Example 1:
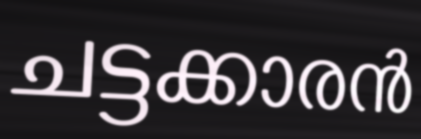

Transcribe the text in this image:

ചട്ടക്കാരൻ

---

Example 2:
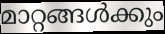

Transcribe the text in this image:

മാറ്റങ്ങൾക്കും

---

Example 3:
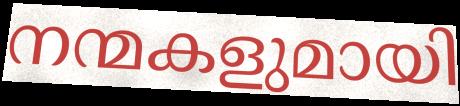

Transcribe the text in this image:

നന്മകളുമായി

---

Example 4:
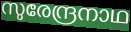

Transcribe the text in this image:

സുരേന്ദ്രനാഥ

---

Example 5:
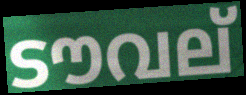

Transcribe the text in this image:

ടൗവല്